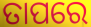
ତାପରେ